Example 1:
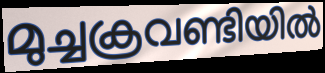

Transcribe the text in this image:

മുച്ചക്രവണ്ടിയിൽ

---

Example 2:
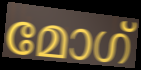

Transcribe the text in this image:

മോഗ്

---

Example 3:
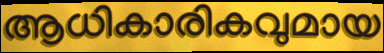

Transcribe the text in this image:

ആധികാരികവുമായ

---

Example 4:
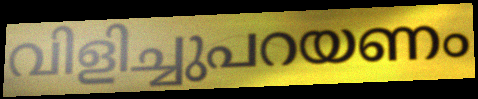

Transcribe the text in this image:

വിളിച്ചുപറയണം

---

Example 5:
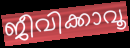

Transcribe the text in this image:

ജീവിക്കാവൂ